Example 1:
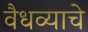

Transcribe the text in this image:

वैधव्याचे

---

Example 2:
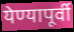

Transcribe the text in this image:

येण्यापूर्वी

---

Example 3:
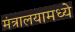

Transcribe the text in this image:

मंत्रालयामध्ये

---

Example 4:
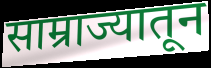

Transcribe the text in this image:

साम्राज्यातून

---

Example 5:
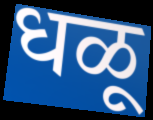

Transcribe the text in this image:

धळू